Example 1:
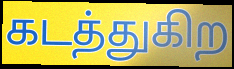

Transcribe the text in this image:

கடத்துகிற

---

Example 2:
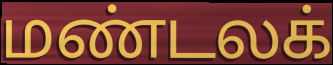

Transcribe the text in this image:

மண்டலக்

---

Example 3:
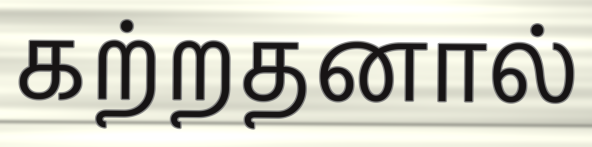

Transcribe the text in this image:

கற்றதனால்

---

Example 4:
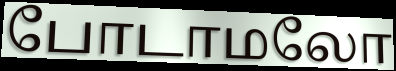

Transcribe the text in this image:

போடாமலோ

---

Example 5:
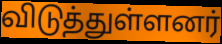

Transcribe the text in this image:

விடுத்துள்ளனர்